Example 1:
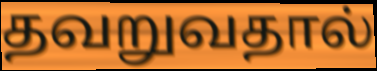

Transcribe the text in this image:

தவறுவதால்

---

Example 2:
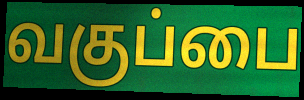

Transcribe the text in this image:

வகுப்பை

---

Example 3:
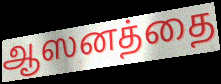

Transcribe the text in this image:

ஆஸனத்தை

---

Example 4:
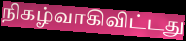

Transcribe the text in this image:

நிகழ்வாகிவிட்டது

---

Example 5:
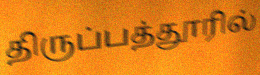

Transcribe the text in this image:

திருப்பத்தூரில்